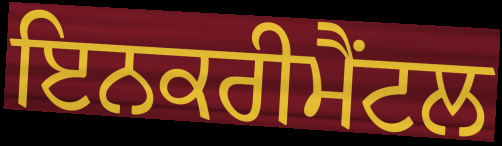
ਇਨਕਰੀਮੈਂਟਲ